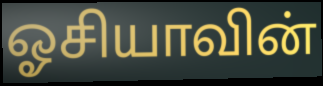
ஓசியாவின்